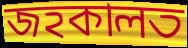
জহকালত